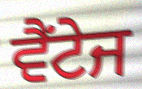
ਵੈਂਟੇਜ